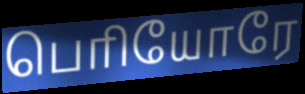
பெரியோரே